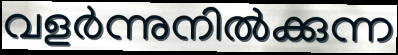
വളർന്നുനിൽക്കുന്ന